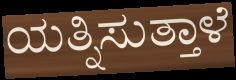
ಯತ್ನಿಸುತ್ತಾಳೆ